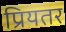
प्रियतर